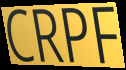
CRPF